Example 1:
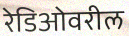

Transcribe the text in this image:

रेडिओवरील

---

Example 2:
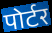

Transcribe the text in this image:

पोर्टर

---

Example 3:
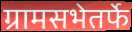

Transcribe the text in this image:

ग्रामसभेतर्फे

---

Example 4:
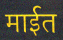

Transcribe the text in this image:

माईत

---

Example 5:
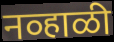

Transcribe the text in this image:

नव्हाळी